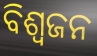
ବିଶ୍ଵଜନ